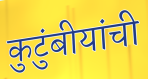
कुटुंबीयांची